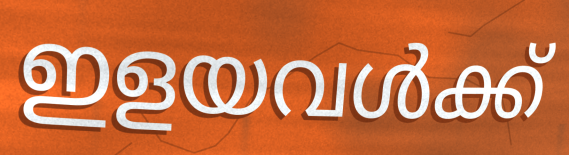
ഇളയവൾക്ക്